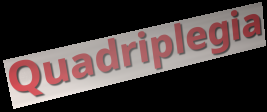
Quadriplegia